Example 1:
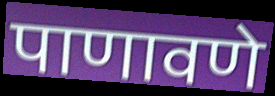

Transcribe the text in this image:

पाणावणे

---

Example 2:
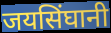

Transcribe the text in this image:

जयसिंघानी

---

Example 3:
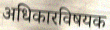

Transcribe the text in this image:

अधिकारविषयक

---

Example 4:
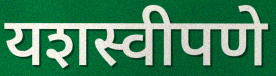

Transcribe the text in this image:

यशस्वीपणे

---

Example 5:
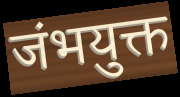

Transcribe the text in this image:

जंभयुक्त